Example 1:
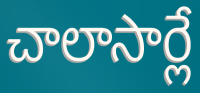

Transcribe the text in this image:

చాలాసార్లే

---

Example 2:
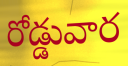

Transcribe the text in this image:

రోడ్డువార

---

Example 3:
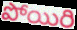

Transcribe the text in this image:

పోయిరి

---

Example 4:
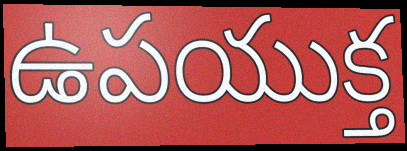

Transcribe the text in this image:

ఉపయుక్త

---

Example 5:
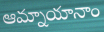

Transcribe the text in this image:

ఆమ్నాయానాం